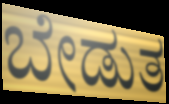
ಬೇಡುತ